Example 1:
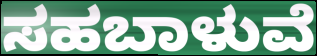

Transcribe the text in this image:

ಸಹಬಾಳುವೆ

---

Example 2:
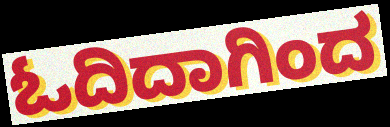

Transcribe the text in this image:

ಓದಿದಾಗಿಂದ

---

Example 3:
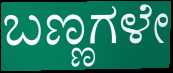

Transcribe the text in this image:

ಬಣ್ಣಗಳೇ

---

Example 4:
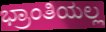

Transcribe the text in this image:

ಭ್ರಾಂತಿಯಲ್ಲ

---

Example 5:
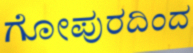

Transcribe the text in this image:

ಗೋಪುರದಿಂದ